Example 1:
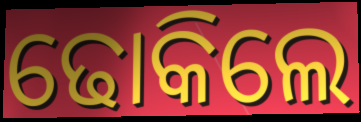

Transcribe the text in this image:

ଢୋକିଲେ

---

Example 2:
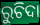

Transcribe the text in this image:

ରୁଚିଦା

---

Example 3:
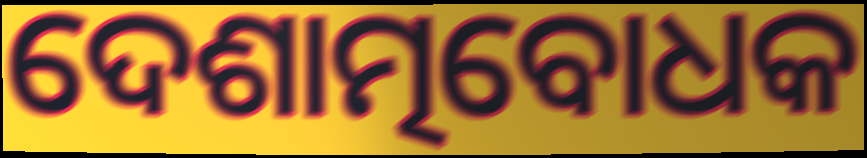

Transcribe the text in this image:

ଦେଶାତ୍ମବୋଧକ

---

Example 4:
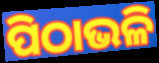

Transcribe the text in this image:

ପିଠାଭଳି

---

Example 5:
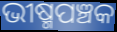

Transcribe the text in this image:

ଭୀଷ୍ମପଞ୍ଚକ